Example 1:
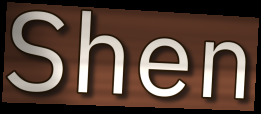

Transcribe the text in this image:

Shen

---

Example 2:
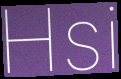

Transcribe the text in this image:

Hsi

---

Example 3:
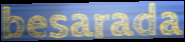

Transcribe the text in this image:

besarada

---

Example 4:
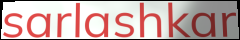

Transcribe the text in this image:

sarlashkar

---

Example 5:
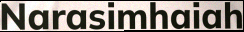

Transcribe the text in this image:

Narasimhaiah